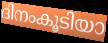
ദിനംകൂടിയാ